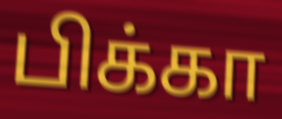
பிக்கா